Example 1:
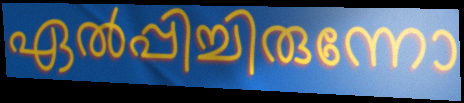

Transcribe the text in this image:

ഏൽപ്പിച്ചിരുന്നോ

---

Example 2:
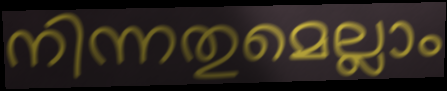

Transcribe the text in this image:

നിന്നതുമെല്ലാം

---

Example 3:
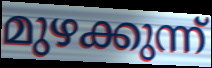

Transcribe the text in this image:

മുഴക്കുന്ന്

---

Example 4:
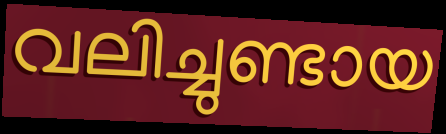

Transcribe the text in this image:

വലിച്ചുണ്ടായ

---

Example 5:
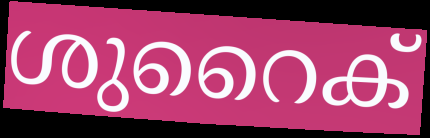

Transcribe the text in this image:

ശുറൈക്